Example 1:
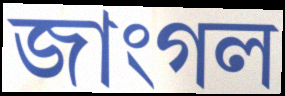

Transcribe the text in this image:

জাংগল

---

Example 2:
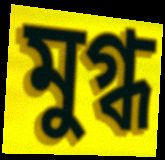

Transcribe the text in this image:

মুগ্ধ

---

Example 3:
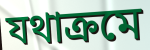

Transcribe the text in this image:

যথাক্ৰমে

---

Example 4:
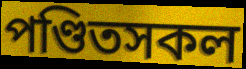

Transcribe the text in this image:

পণ্ডিতসকল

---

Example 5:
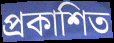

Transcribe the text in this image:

প্ৰকাশিত